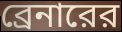
ব্রেনারের